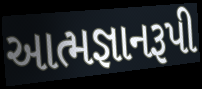
આત્મજ્ઞાનરૂપી